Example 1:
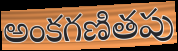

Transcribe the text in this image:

అంకగణితపు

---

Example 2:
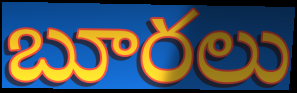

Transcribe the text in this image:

బూరలు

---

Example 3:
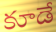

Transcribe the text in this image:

కూడే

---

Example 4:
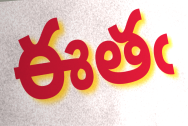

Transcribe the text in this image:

ఈతఁ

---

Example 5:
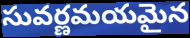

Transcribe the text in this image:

సువర్ణమయమైన